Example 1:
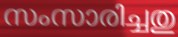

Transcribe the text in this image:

സംസാരിച്ചതു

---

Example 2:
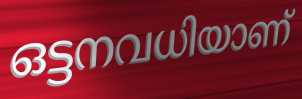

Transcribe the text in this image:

ഒട്ടനവധിയാണ്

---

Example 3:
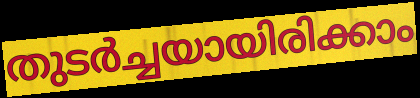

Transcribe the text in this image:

തുടർച്ചയായിരിക്കാം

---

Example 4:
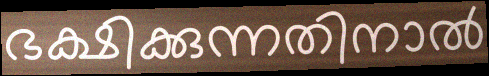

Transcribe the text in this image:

ഭക്ഷിക്കുന്നതിനാൽ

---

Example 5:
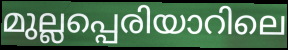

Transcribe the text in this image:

മുല്ലപ്പെരിയാറിലെ